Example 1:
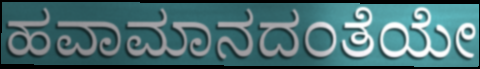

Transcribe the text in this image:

ಹವಾಮಾನದಂತೆಯೇ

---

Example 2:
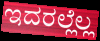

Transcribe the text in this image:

ಇದರಲ್ಲೆಲ್ಲ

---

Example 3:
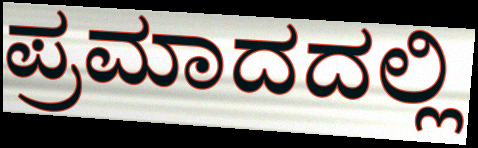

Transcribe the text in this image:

ಪ್ರಮಾದದಲ್ಲಿ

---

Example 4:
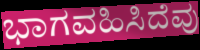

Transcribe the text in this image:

ಭಾಗವಹಿಸಿದೆವು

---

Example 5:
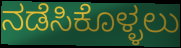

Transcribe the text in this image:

ನಡೆಸಿಕೊಳ್ಳಲು